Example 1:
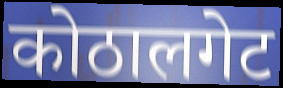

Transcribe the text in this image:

कोठालगेट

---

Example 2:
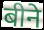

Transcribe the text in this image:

बीने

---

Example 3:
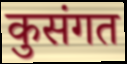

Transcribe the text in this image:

कुसंगत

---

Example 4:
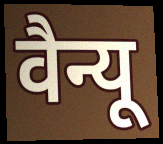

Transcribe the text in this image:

वैन्यू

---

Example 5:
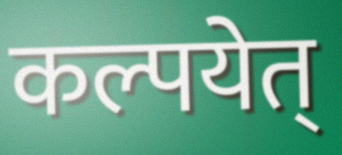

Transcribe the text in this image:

कल्पयेत्